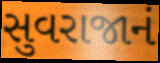
સુવરાજાનં